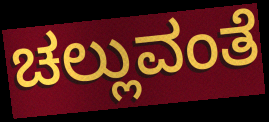
ಚಲ್ಲುವಂತೆ